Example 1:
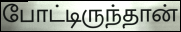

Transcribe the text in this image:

போட்டிருந்தான்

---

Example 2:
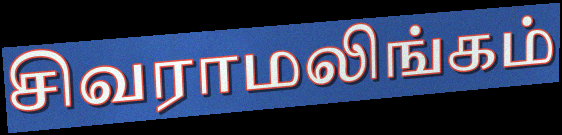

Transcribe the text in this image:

சிவராமலிங்கம்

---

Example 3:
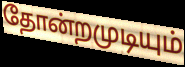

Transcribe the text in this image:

தோன்றமுடியும்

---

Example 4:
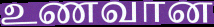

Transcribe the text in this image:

உணவான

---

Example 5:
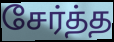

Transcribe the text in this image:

சேர்த்த